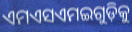
ଏମଏସଏମଇଗୁଡ଼ିକୁ